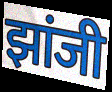
झांजी